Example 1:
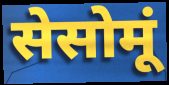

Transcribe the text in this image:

सेसोमूं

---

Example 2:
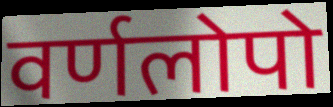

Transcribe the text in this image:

वर्णलोपो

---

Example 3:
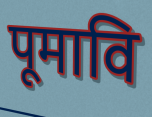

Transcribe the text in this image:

पूमावि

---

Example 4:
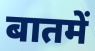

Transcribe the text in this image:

बातमें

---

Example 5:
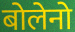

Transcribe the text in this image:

बोलेनो